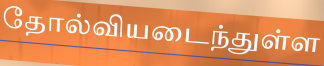
தோல்வியடைந்துள்ள